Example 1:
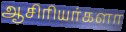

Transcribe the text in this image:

ஆசிரியர்களா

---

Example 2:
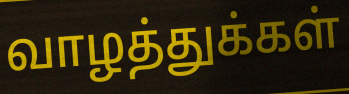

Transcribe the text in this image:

வாழத்துக்கள்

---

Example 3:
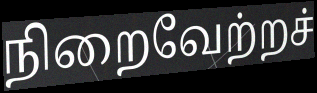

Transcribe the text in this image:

நிறைவேற்றச்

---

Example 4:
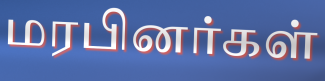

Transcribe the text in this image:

மரபினர்கள்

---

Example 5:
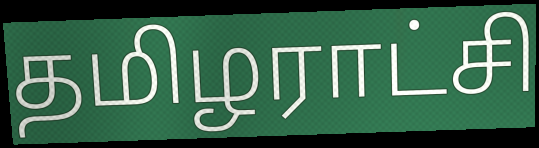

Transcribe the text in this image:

தமிழராட்சி